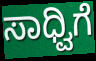
ಸಾಧ್ವಿಗೆ